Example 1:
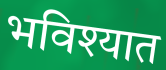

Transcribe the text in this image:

भविश्यात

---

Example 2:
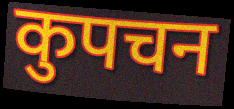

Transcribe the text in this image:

कुपचन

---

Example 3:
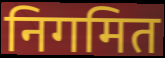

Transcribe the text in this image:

निगमित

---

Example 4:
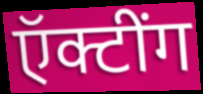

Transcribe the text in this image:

ऍक्टींग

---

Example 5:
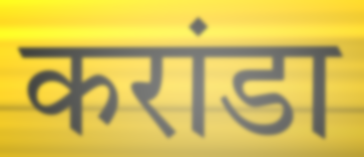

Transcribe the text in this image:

करांडा